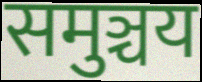
समुञ्चय